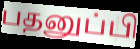
பதனுப்பி